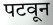
पटवून